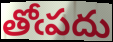
తోఁపదు